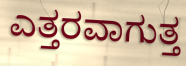
ಎತ್ತರವಾಗುತ್ತ